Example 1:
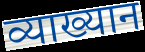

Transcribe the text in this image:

व्याख्यान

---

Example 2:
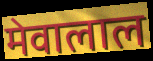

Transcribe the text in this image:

मेवालाल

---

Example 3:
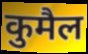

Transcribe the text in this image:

कुमैल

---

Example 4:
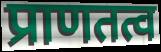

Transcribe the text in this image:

प्राणतत्व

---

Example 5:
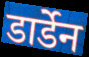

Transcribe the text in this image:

डार्डेन